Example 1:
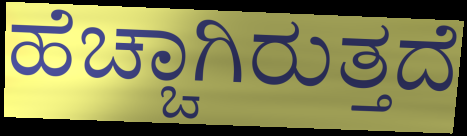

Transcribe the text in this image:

ಹೆಚ್ಚಾಗಿರುತ್ತದೆ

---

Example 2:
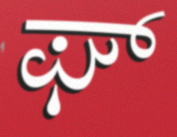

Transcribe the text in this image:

ಘ್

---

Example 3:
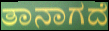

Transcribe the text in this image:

ತಾನಾಗದೆ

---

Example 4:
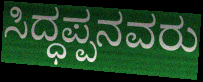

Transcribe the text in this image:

ಸಿದ್ಧಪ್ಪನವರು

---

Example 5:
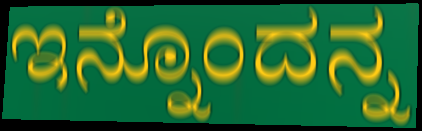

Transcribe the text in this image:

ಇನ್ನೊಂದನ್ನ